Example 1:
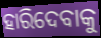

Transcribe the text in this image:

ହାରିଦେବାକୁ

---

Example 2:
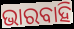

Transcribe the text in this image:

ଭାରବାହି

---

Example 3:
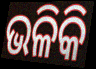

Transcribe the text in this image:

ଭଳିକି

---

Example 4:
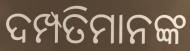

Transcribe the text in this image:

ଦମ୍ପତିମାନଙ୍କ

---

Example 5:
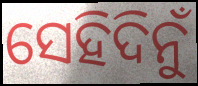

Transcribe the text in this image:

ସେହିଦିନୁଁ